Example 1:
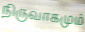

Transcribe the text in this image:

நிருவாகமும்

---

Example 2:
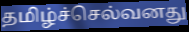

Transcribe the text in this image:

தமிழ்ச்செல்வனது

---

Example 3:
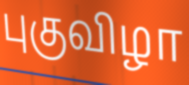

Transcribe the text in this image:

புகுவிழா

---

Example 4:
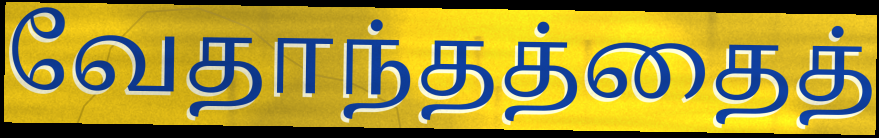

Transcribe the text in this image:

வேதாந்தத்தைத்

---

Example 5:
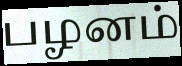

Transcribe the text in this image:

பழனம்